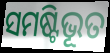
ସମଷ୍ଟିଭୂତ